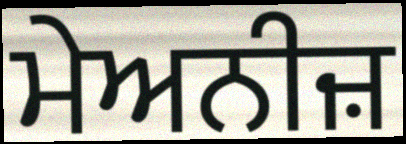
ਮੇਅਨੀਜ਼